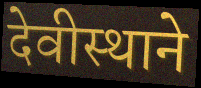
देवीस्थाने